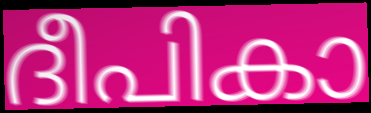
ദീപികാ